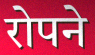
रोपने